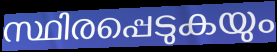
സ്ഥിരപ്പെടുകയും